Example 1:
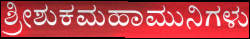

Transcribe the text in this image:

ಶ್ರೀಶುಕಮಹಾಮುನಿಗಳು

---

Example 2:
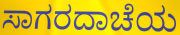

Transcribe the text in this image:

ಸಾಗರದಾಚೆಯ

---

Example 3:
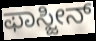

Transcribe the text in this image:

ಫಾಸ್ಜೀನ್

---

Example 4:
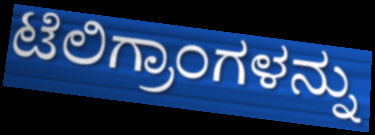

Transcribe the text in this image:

ಟೆಲಿಗ್ರಾಂಗಳನ್ನು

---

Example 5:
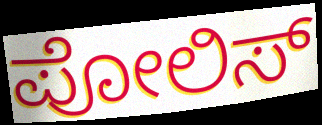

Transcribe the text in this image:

ಪೋಲಿಸ್